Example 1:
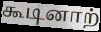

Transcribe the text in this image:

கூடினாற்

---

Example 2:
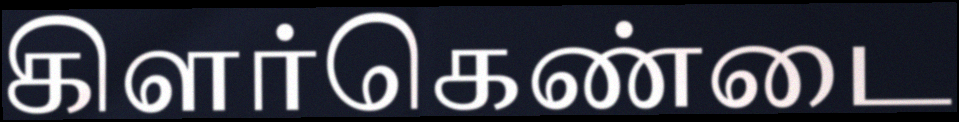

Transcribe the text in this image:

கிளர்கெண்டை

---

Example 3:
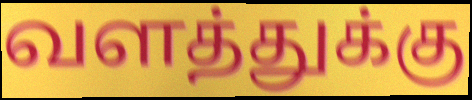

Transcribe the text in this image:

வளத்துக்கு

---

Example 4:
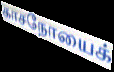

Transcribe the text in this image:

காசநோயைக்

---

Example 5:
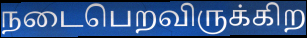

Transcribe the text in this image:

நடைபெறவிருக்கிற